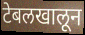
टेबलखालून